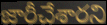
జారీచేశారని